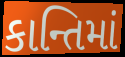
કાન્તિમાં